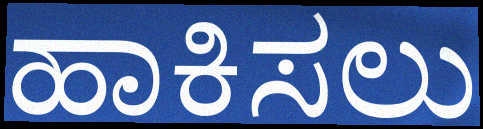
ಹಾಕಿಸಲು